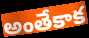
అంతేకాక